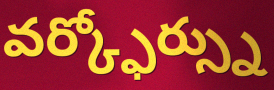
వర్క్ఫోర్స్ను